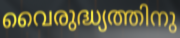
വൈരുദ്ധ്യത്തിനു